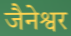
जैनेश्वर